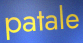
patale